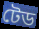
টেড